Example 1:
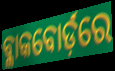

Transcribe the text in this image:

ବ୍ଳାକବୋର୍ଡ଼ରେ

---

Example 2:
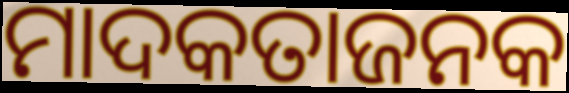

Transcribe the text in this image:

ମାଦକତାଜନକ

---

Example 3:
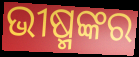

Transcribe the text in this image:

ଭୀଷ୍ମଙ୍କର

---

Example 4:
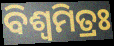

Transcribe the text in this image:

ବିଶ୍ବମିତ୍ରଃ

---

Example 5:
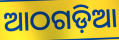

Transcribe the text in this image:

ଆଠଗଡ଼ିଆ